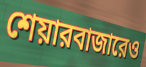
শেয়ারবাজারেও